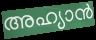
അഹ്യാൻ